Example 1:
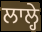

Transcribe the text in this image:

ਲਾਲ੍ਹੇ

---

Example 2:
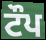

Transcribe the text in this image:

ਟੌਪ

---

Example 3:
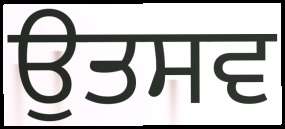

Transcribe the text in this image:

ਉਤਸਵ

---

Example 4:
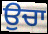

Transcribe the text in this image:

ਉਚਾ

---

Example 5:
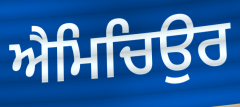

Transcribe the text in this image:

ਐਮਿਚਿਉਰ